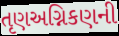
તૃણઅગ્નિકણની